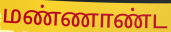
மண்ணாண்ட